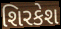
શિરકેશ